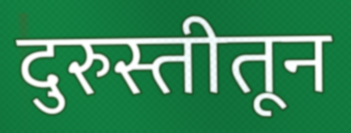
दुरुस्तीतून